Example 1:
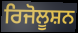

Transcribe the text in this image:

ਰਿਜੋਲੂਸ਼ਨ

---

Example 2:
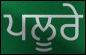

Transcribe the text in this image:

ਪਲੂਰੇ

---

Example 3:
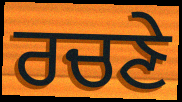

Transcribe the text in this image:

ਰਚਣੇ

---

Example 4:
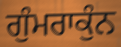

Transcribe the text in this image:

ਗੁੰਮਰਾਕੁੰਨ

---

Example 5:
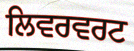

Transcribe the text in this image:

ਲਿਵਰਵਰਟ